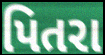
પિતરા